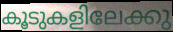
കൂടുകളിലേക്കു